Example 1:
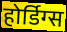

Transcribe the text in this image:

होर्डिग्स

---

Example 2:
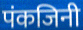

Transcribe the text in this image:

पंकजिनी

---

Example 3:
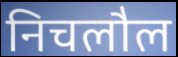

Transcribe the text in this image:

निचलौल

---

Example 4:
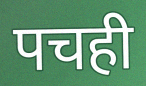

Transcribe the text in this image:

पचही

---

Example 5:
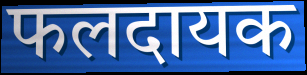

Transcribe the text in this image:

फलदायक